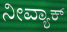
ನೀವ್ಯಾಕ್